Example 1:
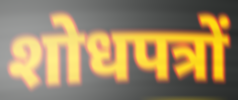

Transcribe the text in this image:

शोधपत्रों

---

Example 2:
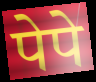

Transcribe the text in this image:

पेपे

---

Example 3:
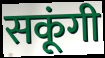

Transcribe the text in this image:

सकूंगी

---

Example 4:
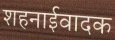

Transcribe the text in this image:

शहनाईवादक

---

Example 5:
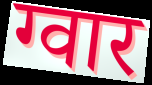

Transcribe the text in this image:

ग्वार